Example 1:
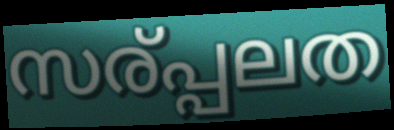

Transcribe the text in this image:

സര്പ്പലത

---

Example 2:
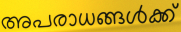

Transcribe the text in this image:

അപരാധങ്ങൾക്ക്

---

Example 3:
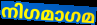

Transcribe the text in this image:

നിഗമാഗമ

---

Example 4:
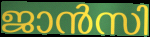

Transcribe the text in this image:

ജാൻസി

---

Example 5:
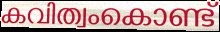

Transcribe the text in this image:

കവിത്വംകൊണ്ട്